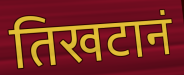
तिखटानं